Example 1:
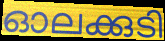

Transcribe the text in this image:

ഓലക്കുടി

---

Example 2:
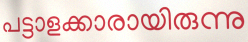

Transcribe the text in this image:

പട്ടാളക്കാരായിരുന്നു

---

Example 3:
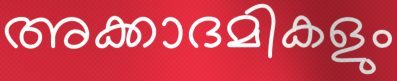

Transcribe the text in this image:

അക്കാദമികളും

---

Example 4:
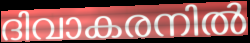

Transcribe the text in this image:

ദിവാകരനിൽ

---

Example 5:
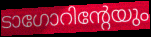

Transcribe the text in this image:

ടാഗോറിന്റേയും